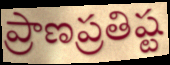
ప్రాణప్రతిష్ట